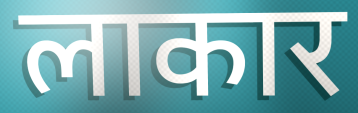
लाकार